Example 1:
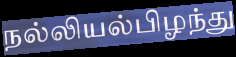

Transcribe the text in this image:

நல்லியல்பிழந்து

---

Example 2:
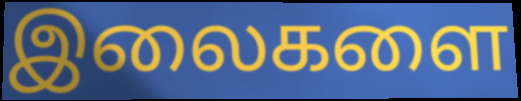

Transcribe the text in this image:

இலைகளை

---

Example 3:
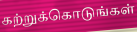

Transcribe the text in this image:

கற்றுக்கொடுங்கள்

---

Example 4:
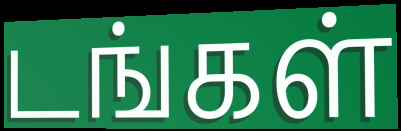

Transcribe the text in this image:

டங்கள்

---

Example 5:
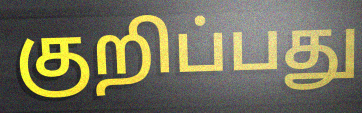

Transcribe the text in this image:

குறிப்பது